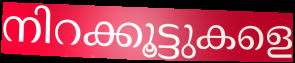
നിറക്കൂട്ടുകളെ